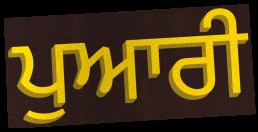
ਪੁਆਰੀ